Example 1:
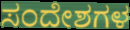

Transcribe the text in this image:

ಸಂದೇಶಗಳ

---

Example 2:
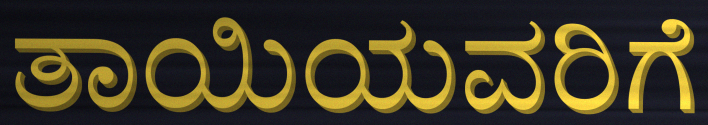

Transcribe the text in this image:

ತಾಯಿಯವರಿಗೆ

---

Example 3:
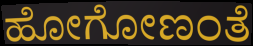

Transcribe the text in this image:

ಹೋಗೋಣಂತೆ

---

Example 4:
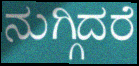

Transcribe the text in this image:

ನುಗ್ಗಿದರೆ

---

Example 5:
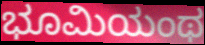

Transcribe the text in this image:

ಭೂಮಿಯಂಥ